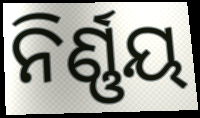
ନିର୍ଣ୍ଣୟ